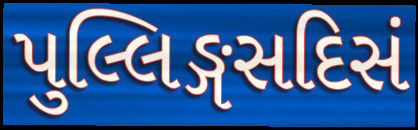
પુલ્લિઙ્ગસદિસં